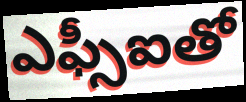
ఎఫ్సీఐతో